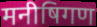
मनीषिगण